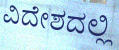
ವಿದೇಶದಲ್ಲಿ